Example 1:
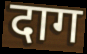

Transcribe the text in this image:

दाग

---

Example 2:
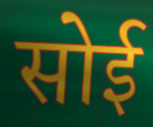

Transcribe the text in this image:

सोई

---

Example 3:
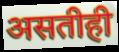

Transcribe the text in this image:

असतीही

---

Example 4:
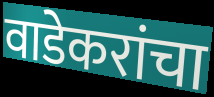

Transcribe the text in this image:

वाडेकरांचा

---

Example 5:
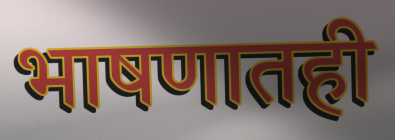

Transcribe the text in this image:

भाषणातही